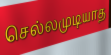
செல்லமுடியாத